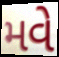
મવે